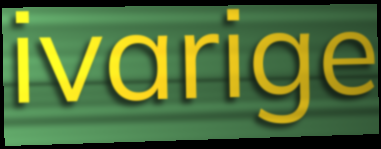
ivarige